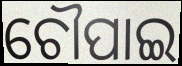
ଚୌପାଇ